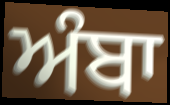
ਅੰਬਾ